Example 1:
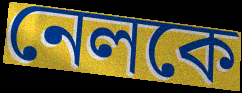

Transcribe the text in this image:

নেলকে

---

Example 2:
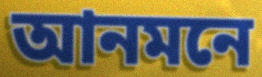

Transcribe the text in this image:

আনমনে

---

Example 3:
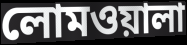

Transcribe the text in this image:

লোমওয়ালা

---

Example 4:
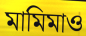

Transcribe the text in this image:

মামিমাও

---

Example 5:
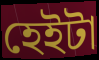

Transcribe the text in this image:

হেইটা